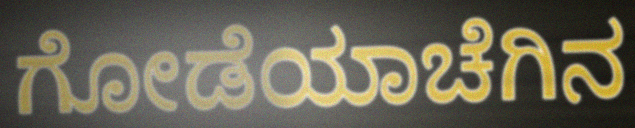
ಗೋಡೆಯಾಚೆಗಿನ